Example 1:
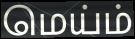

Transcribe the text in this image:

மெய்ம்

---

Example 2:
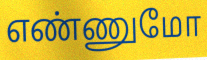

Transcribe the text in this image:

எண்ணுமோ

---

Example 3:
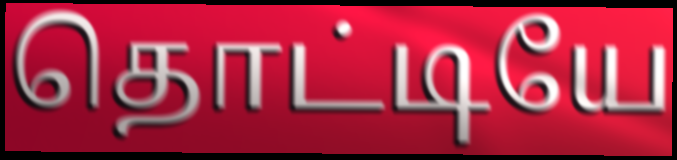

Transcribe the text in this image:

தொட்டியே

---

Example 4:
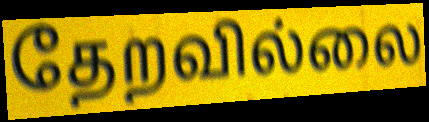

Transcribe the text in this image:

தேறவில்லை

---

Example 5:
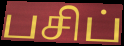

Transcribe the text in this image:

பசிப்